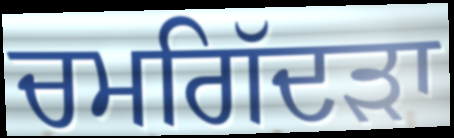
ਚਮਗਿੱਦੜਾ